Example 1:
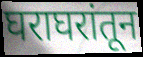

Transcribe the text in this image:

घराघरांतून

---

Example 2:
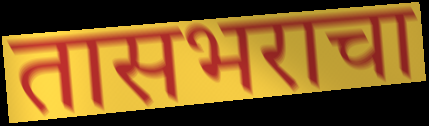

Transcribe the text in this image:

तासभराचा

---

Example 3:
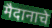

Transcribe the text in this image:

मैदानाचे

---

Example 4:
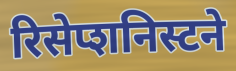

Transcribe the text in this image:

रिसेप्शनिस्टने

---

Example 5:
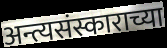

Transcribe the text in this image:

अन्त्यसंस्काराच्या